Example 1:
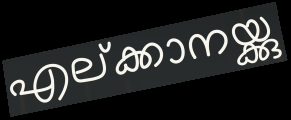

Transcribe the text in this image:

എല്ക്കാനയ്ക്കു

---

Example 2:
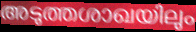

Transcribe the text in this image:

അടുത്തശാഖയിലും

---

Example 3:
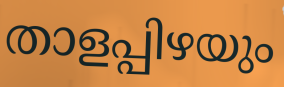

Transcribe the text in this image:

താളപ്പിഴയും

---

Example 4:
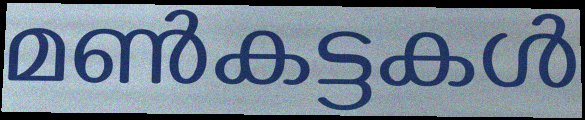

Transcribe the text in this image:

മൺകട്ടകൾ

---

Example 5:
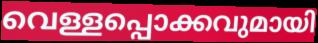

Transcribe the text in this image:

വെള്ളപ്പൊക്കവുമായി